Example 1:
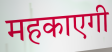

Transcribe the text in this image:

महकाएगी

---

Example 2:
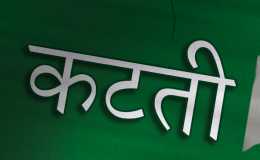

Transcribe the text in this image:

कटती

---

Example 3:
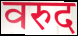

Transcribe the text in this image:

वरुद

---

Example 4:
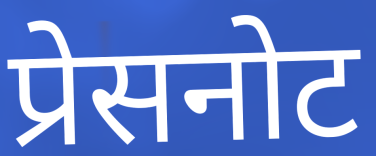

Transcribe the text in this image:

प्रेसनोट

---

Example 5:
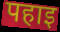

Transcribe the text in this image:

पहाइ